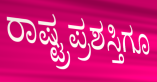
ರಾಷ್ಟ್ರಪ್ರಶಸ್ತಿಗೂ